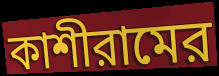
কাশীরামের